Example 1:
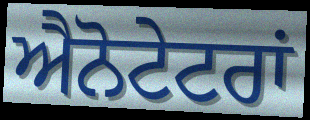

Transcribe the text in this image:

ਐਨੋਟੇਟਰਾਂ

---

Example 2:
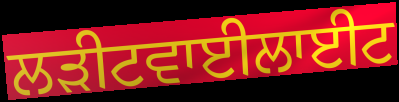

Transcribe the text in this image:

ਲੜੀਟਵਾਈਲਾਈਟ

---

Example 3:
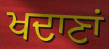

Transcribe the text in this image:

ਖਦਾਣਾਂ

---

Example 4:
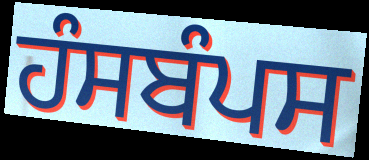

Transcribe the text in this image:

ਹੰਸਬੰਪਸ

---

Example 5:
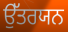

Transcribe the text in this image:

ਉੱਤਰਯਨ